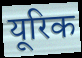
यूरिक